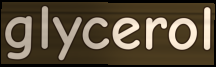
glycerol